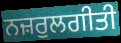
ਨਜ਼ਰੁਲਗੀਤੀ